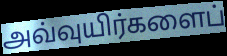
அவ்வுயிர்களைப்